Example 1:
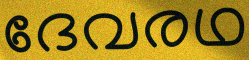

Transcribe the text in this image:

ദേവരഥ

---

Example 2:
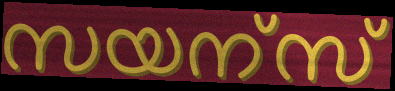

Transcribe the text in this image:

സയന്സ്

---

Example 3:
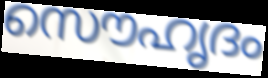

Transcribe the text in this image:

സൌഹൃദം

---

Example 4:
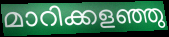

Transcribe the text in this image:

മാറിക്കളഞ്ഞു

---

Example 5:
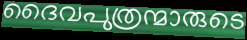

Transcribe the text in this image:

ദൈവപുത്രന്മാരുടെ